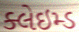
ક્લેઇમ્ડ